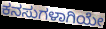
ಕನಸುಗಳಾಗಿಯೇ